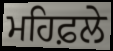
ਮਹਿਫ਼ਲੇ